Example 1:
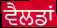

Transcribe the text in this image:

ਵੈਲਡਾਂ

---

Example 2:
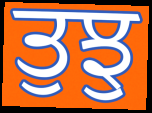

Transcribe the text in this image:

ਤੁਝੁ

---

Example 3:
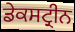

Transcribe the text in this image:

ਡੇਕਸਟ੍ਰੀਨ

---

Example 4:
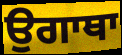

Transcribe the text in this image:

ਉਗਾਥਾ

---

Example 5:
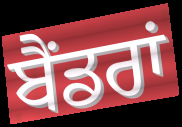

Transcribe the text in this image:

ਬੈਂਡਰਾਂ